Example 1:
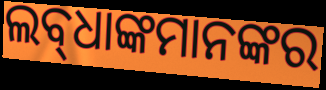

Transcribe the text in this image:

ଲବ୍‌ଧାଙ୍କମାନଙ୍କର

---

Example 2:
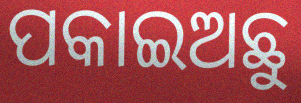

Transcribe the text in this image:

ପକାଇଅଛୁ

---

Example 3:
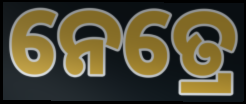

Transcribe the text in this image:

ନେତ୍ରେ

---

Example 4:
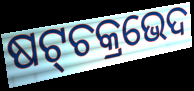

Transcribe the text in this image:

ଷଟ୍‌ଚକ୍ରଭେଦ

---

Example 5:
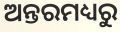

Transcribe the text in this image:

ଅନ୍ତରମଧ୍ୟରୁ